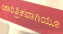
ಚಾರಿತ್ರಿಕವಾಗಿಯೂ